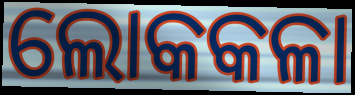
ଲୋକକଳା